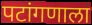
पटांगणाला